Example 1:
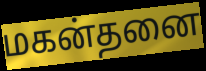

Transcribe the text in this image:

மகன்தனை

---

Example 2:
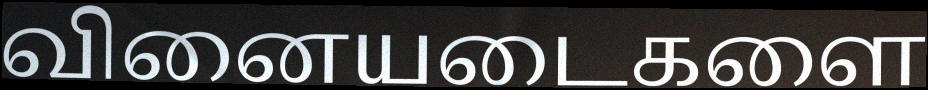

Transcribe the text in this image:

வினையடைகளை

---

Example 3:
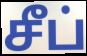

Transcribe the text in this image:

சீப்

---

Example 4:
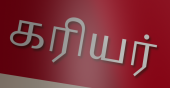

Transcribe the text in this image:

கரியர்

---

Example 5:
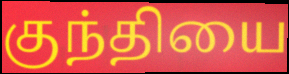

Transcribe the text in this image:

குந்தியை